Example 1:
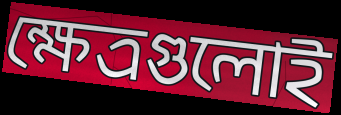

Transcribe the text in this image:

ক্ষেত্রগুলোই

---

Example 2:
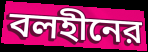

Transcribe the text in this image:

বলহীনের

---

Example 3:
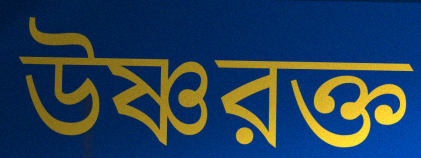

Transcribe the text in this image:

উষ্ণরক্ত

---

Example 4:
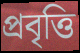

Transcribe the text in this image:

প্রবৃত্তি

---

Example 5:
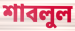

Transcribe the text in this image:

শাবলুল